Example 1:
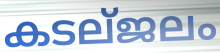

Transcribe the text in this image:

കടല്ജലം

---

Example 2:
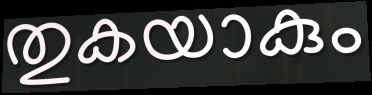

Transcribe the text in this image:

തുകയാകും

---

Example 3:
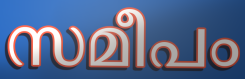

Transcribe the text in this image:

സമീപം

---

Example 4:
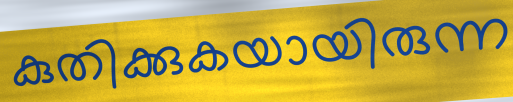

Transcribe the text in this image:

കുതിക്കുകയായിരുന്ന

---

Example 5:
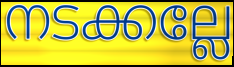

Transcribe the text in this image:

നടക്കല്ലേ